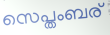
സെപ്തംബര്